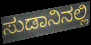
ಸುಡಾನಿನಲ್ಲಿ